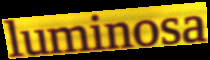
luminosa